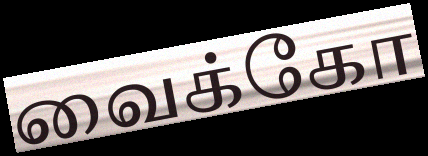
வைக்கோ